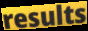
results